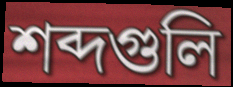
শব্দগুলি